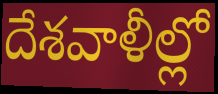
దేశవాళీల్లో